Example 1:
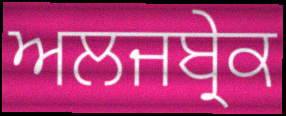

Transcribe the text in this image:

ਅਲਜਬ੍ਰੇਕ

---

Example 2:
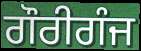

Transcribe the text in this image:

ਗੌਰੀਗੰਜ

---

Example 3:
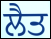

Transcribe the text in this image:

ਲੈਤ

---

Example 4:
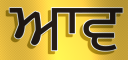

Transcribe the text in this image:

ਆਵ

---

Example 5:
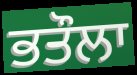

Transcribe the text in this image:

ਭਤੌਲਾ